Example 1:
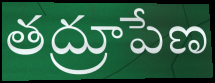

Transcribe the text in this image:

తద్రూపేణ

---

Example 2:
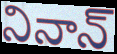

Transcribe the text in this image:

నినాన్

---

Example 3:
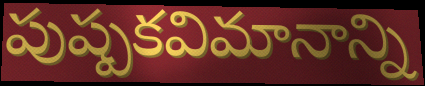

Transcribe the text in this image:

పుష్పకవిమానాన్ని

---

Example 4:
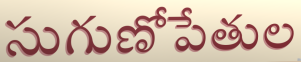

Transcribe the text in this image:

సుగుణోపేతుల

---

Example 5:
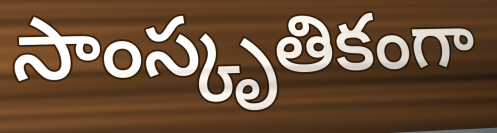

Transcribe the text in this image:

సాంస్కృతికంగా